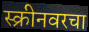
स्क्रीनवरचा